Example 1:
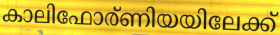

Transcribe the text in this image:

കാലിഫോര്ണിയയിലേക്ക്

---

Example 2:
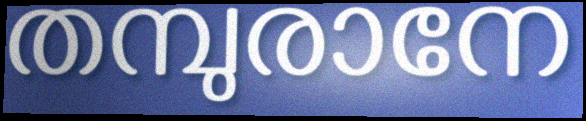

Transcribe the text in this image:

തമ്പുരാനേ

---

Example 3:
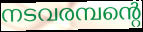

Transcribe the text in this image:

നടവരമ്പന്റെ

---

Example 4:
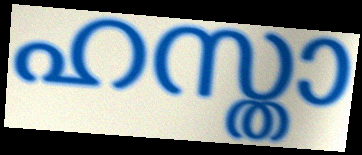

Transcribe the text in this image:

ഹസ്താ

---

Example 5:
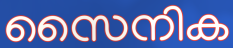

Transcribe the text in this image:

സൈനിക